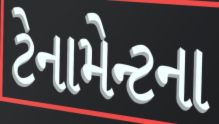
ટેનામેન્ટના